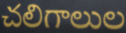
చలిగాలుల